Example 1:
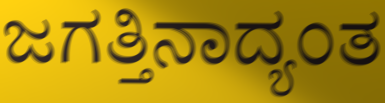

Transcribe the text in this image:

ಜಗತ್ತಿನಾದ್ಯಂತ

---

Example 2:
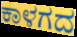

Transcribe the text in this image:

ಕಾಳಗದ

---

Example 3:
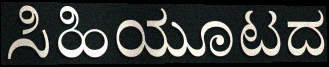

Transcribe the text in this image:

ಸಿಹಿಯೂಟದ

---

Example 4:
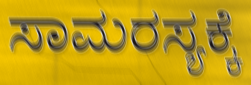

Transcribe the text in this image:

ಸಾಮರಸ್ಯಕ್ಕೆ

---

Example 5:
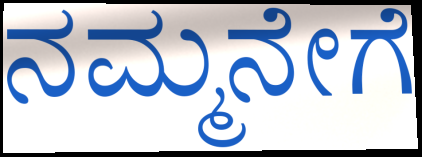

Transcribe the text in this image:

ನಮ್ಮನೇಗೆ